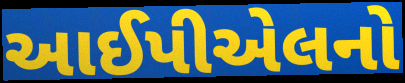
આઈપીએલનો